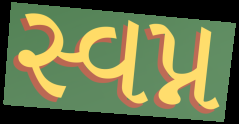
સ્વપ્ન